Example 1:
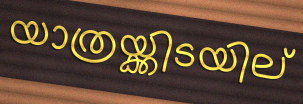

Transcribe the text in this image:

യാത്രയ്ക്കിടയില്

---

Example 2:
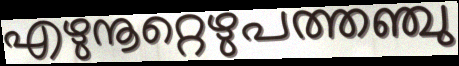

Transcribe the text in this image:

എഴുനൂറ്റെഴുപത്തഞ്ചു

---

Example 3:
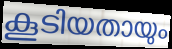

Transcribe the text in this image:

കൂടിയതായും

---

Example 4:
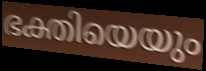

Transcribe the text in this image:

ഭക്തിയെയും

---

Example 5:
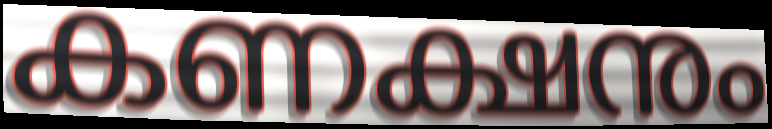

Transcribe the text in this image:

കണക്ഷനും